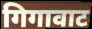
गिगावाट